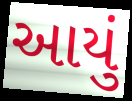
આયું